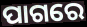
ପାଗରେ